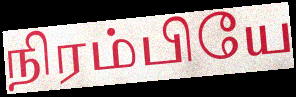
நிரம்பியே